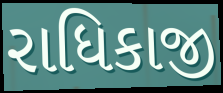
રાધિકાજી